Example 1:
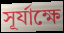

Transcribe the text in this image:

সূর্যাক্ষে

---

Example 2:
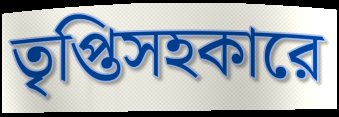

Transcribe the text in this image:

তৃপ্তিসহকারে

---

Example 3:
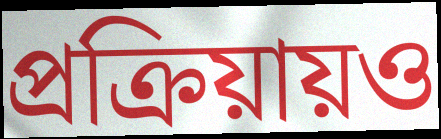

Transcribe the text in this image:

প্রক্রিয়ায়ও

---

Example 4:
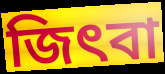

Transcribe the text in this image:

জিৎবা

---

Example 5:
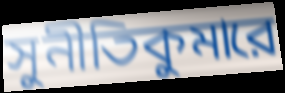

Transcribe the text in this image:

সুনীতিকুমারে